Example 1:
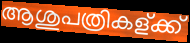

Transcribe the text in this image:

ആശുപത്രികള്ക്ക്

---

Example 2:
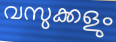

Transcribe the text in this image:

വസുക്കളും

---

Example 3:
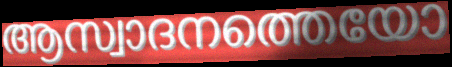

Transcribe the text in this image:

ആസ്വാദനത്തെയോ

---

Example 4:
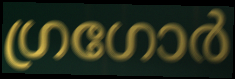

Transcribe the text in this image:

ഗ്രഗോർ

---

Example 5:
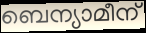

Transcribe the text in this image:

ബെന്യാമീന്